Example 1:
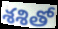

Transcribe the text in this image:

శశితో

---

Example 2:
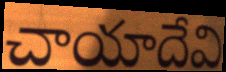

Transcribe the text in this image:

చాయాదేవి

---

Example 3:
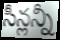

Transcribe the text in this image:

సీన్లన్నీ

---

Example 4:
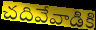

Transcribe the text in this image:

చదివేవాడికి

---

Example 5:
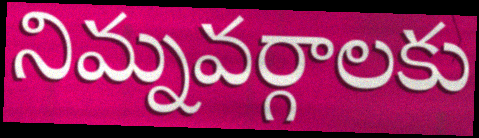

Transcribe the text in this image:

నిమ్నవర్గాలకు